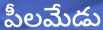
పీలమేడు